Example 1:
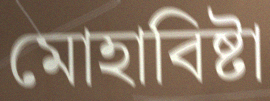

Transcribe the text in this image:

মোহাবিষ্টা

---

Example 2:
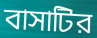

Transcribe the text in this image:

বাসাটির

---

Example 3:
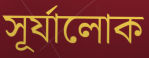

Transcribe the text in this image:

সূর্যালোক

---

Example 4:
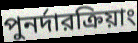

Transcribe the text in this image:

পুনর্দারক্রিয়াং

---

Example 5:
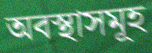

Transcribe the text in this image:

অবস্থাসমূহ